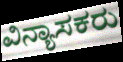
ವಿನ್ಯಾಸಕರು